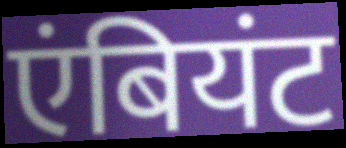
एंबियंट